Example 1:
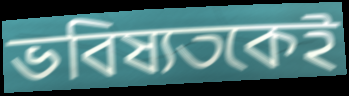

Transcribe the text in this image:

ভবিষ্যতকেই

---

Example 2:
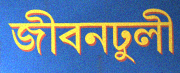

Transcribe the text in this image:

জীবনঢুলী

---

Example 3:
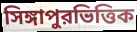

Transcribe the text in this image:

সিঙ্গাপুরভিত্তিক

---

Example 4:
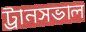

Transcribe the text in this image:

ট্রানসভাল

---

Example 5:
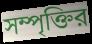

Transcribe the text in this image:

সম্পৃক্তির